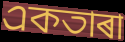
একতাৰা